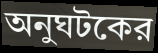
অনুঘটকের